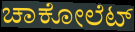
ಚಾಕೋಲೆಟ್